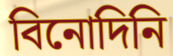
বিনোদিনি